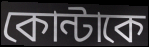
কোন্টাকে